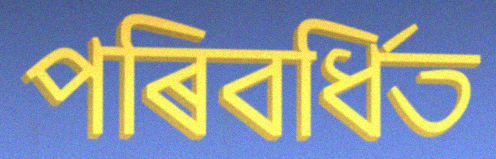
পৰিবৰ্ধিত